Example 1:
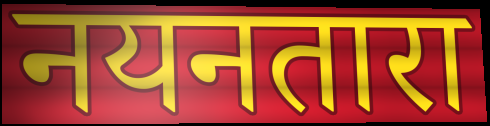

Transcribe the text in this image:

नयनतारा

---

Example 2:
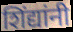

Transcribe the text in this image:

शिंद्यांनी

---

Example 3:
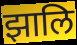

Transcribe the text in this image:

झालि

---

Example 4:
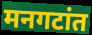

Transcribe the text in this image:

मनगटांत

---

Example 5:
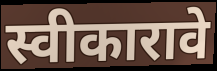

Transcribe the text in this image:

स्वीकारावे